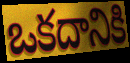
ఒకదానికి